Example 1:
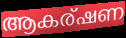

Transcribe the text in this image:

ആകര്ഷണ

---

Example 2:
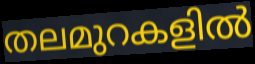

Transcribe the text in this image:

തലമുറകളിൽ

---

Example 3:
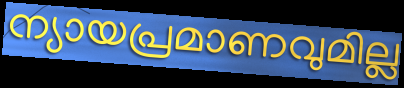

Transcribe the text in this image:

ന്യായപ്രമാണവുമില്ല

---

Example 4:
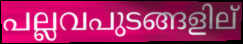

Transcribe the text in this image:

പല്ലവപുടങ്ങളില്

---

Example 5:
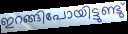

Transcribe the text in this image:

ഇറങ്ങിപോയിട്ടുണ്ടു്